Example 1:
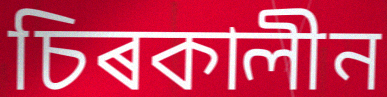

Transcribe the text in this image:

চিৰকালীন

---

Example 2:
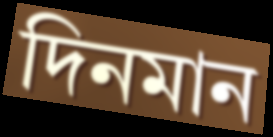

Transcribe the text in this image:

দিনমান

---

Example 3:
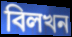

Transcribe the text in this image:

বিলখন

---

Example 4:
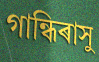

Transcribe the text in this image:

গান্ধিৰাসু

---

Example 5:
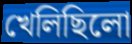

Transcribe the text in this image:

খেলিছিলো